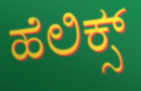
ಹೆಲಿಕ್ಸ್